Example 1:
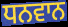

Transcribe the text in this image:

ਧਨਵਾਨ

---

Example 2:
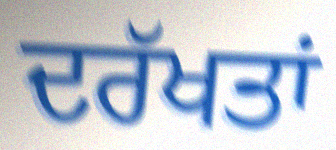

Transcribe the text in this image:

ਦਰੱਖਤਾਂ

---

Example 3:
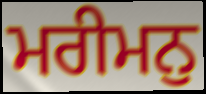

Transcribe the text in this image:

ਮਰੀਮਨੁ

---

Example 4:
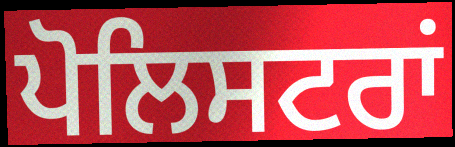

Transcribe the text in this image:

ਪੋਲਿਸਟਰਾਂ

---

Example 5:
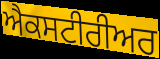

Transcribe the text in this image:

ਐਕਸਟੀਰੀਅਰ